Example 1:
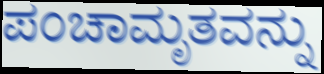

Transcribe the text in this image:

ಪಂಚಾಮೃತವನ್ನು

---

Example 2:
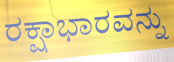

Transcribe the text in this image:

ರಕ್ಷಾಭಾರವನ್ನು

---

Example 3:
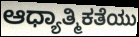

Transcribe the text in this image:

ಆಧ್ಯಾತ್ಮಿಕತೆಯು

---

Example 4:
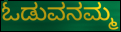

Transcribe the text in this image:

ಓಡುವನಮ್ಮ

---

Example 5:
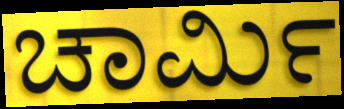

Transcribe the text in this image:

ಚಾರ್ಮಿ